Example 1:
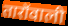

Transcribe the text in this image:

तारोंवाली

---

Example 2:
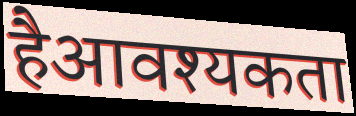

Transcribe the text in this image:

हैआवश्यकता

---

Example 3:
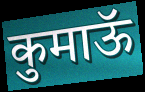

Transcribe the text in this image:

कुमाऊॅ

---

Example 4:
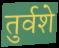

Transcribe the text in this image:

तुर्वशे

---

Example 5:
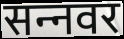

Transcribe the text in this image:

सन्नवर